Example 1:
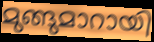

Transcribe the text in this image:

മുങ്ങുമാറായി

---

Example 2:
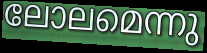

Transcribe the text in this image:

ലോലമെന്നു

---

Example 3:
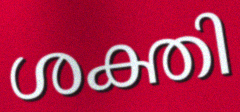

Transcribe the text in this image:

ശക്തി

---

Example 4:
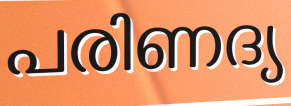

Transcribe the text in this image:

പരിണദ്യ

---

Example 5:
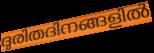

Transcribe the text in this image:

ദുരിതദിനങ്ങളിൽ